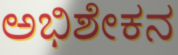
ಅಭಿಶೇಕನ